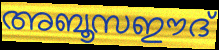
അബൂസഈദ്